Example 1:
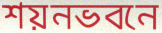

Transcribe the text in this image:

শয়নভবনে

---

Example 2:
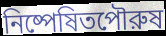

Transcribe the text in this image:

নিষ্পেষিতপৌরুষ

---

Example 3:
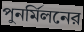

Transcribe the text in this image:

পুনর্মিলনের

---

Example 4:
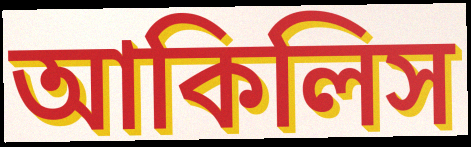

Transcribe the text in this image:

আকিলিস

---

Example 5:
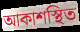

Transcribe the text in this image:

আকাশস্থিত